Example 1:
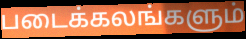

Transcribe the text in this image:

படைக்கலங்களும்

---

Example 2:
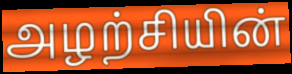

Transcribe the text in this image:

அழற்சியின்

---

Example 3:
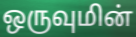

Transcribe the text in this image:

ஒருவுமின்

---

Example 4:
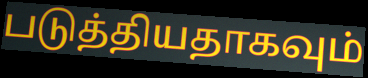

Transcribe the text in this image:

படுத்தியதாகவும்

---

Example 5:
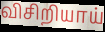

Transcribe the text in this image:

விசிறியாய்